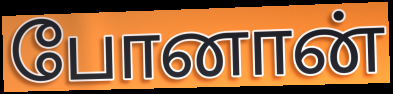
போனான்